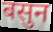
बसुन